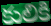
కులికి